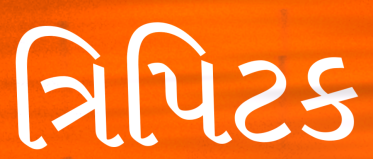
ત્રિપિટક